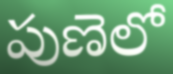
పుణెలో